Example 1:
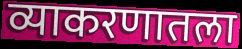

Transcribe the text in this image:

व्याकरणातला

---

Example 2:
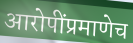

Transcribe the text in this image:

आरोपींप्रमाणेच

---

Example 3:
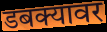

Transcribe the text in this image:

डबक्यावर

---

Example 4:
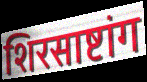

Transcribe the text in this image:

शिरसाष्टांग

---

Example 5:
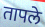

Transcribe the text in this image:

तापले